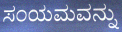
ಸಂಯಮವನ್ನು